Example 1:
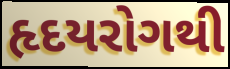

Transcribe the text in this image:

હૃદયરોગથી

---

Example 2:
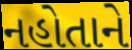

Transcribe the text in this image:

નહોતાને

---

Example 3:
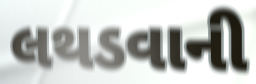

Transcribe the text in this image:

લથડવાની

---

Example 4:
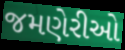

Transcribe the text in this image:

જમણેરીઓ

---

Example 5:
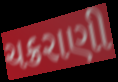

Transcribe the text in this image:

ચક્રરાણી